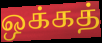
ஒக்கத்